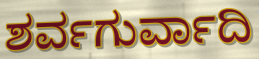
ಶರ್ವಗುರ್ವಾದಿ